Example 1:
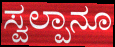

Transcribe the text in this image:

ಸ್ವಲ್ಪಾನೂ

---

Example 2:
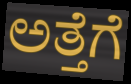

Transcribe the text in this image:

ಅತ್ತೆಗೆ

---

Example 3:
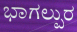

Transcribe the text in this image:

ಭಾಗಲ್ಪುರ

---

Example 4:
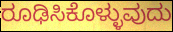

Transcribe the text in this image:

ರೂಢಿಸಿಕೊಳ್ಳುವುದು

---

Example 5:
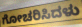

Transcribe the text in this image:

ಗೋಚರಿಸಿದಳು